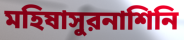
মহিষাসুরনাশিনি